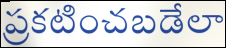
ప్రకటించబడేలా